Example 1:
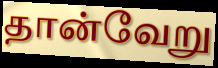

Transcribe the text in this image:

தான்வேறு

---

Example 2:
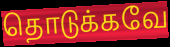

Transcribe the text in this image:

தொடுக்கவே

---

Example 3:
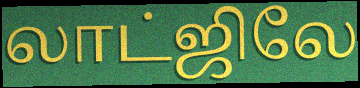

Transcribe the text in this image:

லாட்ஜிலே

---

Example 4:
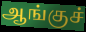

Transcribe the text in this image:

ஆங்குச்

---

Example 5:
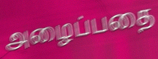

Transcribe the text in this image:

அழைப்பதை